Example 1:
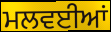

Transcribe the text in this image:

ਮਲਵਈਆਂ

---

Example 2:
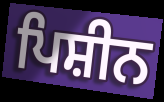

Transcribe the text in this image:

ਪਿਸ਼ੀਨ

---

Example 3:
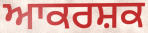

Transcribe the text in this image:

ਆਕਰਸ਼ਕ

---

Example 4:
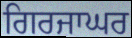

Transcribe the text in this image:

ਗਿਰਜਾਘਰ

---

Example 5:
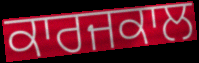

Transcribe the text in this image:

ਕਾਰਜਕਾਲ